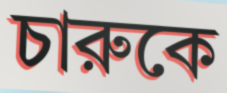
চারুকে